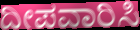
ದೀಪವಾರಿಸಿ